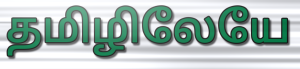
தமிழிலேயே